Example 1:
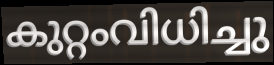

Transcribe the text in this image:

കുറ്റംവിധിച്ചു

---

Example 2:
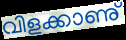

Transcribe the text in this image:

വിളക്കാണു്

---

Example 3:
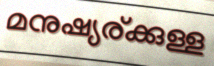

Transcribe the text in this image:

മനുഷ്യര്ക്കുള്ള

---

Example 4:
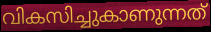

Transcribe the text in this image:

വികസിച്ചുകാണുന്നത്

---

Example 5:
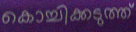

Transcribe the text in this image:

കൊച്ചിക്കടുത്ത്